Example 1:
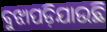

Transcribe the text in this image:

ବୁଝାପଡ଼ିଯାଉଛି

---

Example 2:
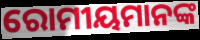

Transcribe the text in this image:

ରୋମୀୟମାନଙ୍କ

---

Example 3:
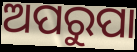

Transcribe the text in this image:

ଅପରୁପା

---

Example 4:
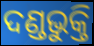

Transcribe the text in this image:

ଦଣ୍ଡଭୁକ୍ତି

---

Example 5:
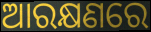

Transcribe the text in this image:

ଆରକ୍ଷଣରେ